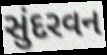
સુંદરવન